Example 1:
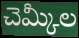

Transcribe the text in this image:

చెమ్కీల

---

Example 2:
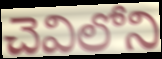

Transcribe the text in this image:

చెవిలోని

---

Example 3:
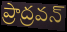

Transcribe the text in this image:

ప్రాద్రవన్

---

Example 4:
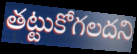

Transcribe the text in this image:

తట్టుకోగలదని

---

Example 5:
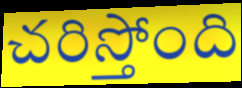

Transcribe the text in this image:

చరిస్తోంది